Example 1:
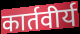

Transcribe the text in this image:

कार्तवीर्य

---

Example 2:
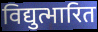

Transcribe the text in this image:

विद्युत्भारित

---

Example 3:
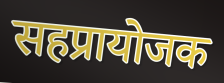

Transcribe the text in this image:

सहप्रायोजक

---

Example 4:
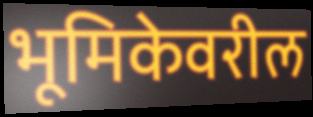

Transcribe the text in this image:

भूमिकेवरील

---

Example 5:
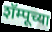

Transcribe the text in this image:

शॅम्पूच्या